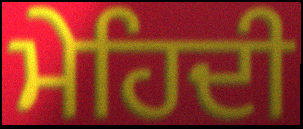
ਮੇਹਿਦੀ